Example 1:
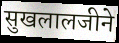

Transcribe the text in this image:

सुखलालजीने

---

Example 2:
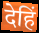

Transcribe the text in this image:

देहिं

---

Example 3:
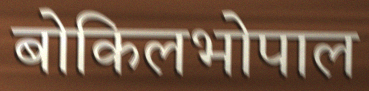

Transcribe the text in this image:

बोकिलभोपाल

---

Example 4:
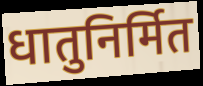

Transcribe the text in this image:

धातुनिर्मित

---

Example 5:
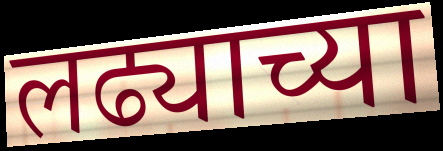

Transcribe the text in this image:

लढ्याच्या